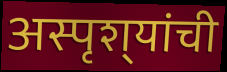
अस्पृश्यांची